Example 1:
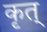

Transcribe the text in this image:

कृत्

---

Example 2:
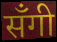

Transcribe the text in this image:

सँगी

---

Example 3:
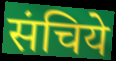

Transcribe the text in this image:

संचिये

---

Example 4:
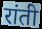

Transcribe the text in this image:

रांती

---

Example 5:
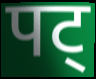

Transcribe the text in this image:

पट्